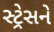
સ્ટ્રેસને